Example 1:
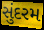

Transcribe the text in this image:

સુંદરમ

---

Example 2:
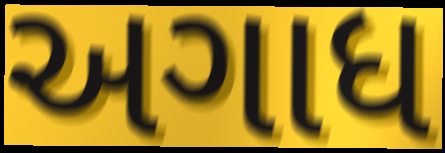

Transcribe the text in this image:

અગાધ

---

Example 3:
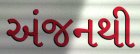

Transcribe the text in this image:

અંજનથી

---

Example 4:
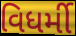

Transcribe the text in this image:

વિધર્મી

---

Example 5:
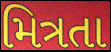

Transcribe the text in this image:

મિત્રતા